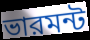
ভারমন্ট